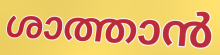
ശാത്താൻ